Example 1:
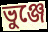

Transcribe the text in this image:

ভুঞ্জে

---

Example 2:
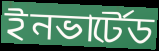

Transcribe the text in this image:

ইনভার্টেড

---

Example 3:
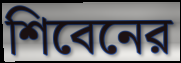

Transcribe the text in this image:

শিবেনের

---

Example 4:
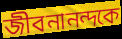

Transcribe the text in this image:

জীবনানন্দকে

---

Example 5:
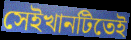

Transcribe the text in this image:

সেইখানটিতেই